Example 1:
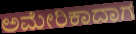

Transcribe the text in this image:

ಅಮೇರಿಕಾದಾಗ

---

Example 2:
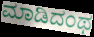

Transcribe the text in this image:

ಮಾಡಿದಂಥ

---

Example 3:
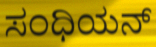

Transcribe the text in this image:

ಸಂಧಿಯನ್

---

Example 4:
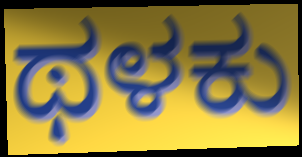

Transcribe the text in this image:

ಥಳಕು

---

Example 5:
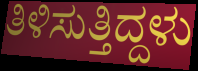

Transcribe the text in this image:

ತಿಳಿಸುತ್ತಿದ್ದಳು